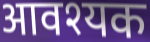
आवश्यक